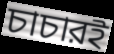
চাচারই